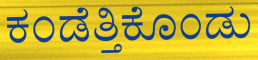
ಕಂಡೆತ್ತಿಕೊಂಡು